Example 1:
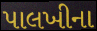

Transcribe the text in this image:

પાલખીના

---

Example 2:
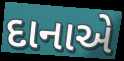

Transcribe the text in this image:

દાનાએ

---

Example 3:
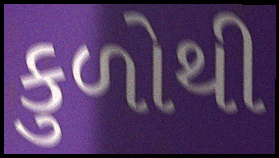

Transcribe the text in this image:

કુળોથી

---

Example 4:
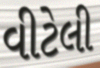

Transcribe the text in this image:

વીટેલી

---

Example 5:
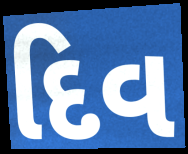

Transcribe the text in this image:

દિવ